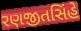
રણજીતસિંહે